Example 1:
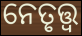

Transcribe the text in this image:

ନେତୃତ୍ତ୍ୱ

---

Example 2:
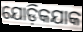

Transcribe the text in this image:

ଯୋଡ଼ିକଯାକ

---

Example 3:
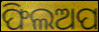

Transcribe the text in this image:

ଫିଲଅପ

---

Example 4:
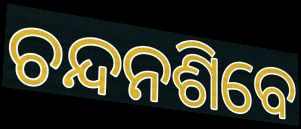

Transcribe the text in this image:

ଚନ୍ଦନଶିବେ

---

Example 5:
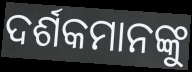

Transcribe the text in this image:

ଦର୍ଶକମାନଙ୍କୁ